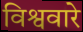
विश्ववारे